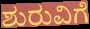
ಶುರುವಿಗೆ